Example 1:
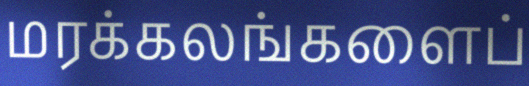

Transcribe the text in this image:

மரக்கலங்களைப்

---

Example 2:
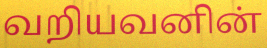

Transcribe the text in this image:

வறியவனின்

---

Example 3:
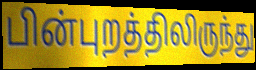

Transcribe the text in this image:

பின்புறத்திலிருந்து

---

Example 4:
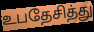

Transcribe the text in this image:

உபதேசித்து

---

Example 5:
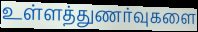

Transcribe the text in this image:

உள்ளத்துணர்வுகளை